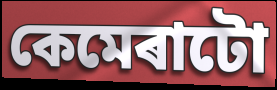
কেমেৰাটো